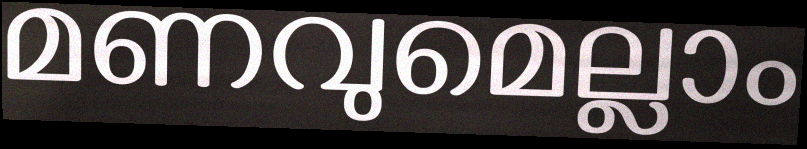
മണവുമെല്ലാം